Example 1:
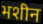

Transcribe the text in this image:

भशीन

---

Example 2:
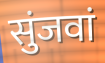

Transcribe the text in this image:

सुंजवां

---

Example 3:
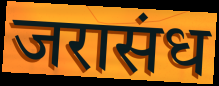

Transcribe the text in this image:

जरासंध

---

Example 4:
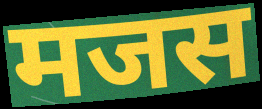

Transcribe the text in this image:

मजस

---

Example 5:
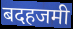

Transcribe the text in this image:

बदहजमी